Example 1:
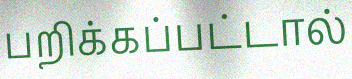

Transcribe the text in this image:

பறிக்கப்பட்டால்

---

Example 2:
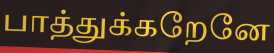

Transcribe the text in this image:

பாத்துக்கறேனே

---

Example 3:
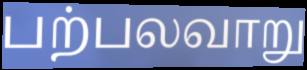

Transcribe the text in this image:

பற்பலவாறு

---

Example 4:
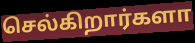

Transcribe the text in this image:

செல்கிறார்களா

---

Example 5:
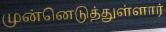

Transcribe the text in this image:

முன்னெடுத்துள்ளார்